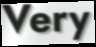
Very